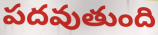
పదవుతుంది